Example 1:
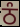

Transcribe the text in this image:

ਠੰ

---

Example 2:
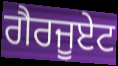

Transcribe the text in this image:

ਗੈਰਜੂਏਟ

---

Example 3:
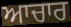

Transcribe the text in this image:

ਆਚਾਰ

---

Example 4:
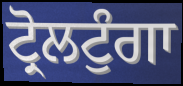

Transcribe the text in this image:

ਟ੍ਰੋਲਟੁੰਗਾ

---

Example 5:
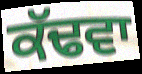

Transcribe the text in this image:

ਕੱਢਵਾ